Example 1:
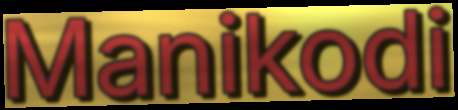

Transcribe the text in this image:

Manikodi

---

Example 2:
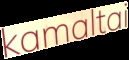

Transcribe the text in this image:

kamaltai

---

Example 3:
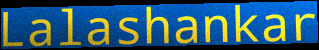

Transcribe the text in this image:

Lalashankar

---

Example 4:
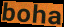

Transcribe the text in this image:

boha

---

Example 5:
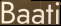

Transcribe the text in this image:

Baati